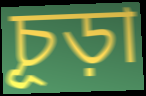
চূড়া